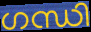
ഗന്ധി